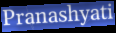
Pranashyati